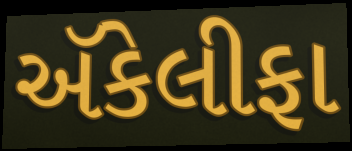
ઍકેલીફા